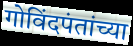
गोविंदपंतांच्या